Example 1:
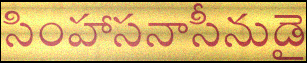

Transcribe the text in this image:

సింహాసనాసీనుడై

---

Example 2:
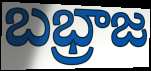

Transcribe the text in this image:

బభ్రాజ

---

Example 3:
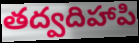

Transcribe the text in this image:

తద్వదిహాపి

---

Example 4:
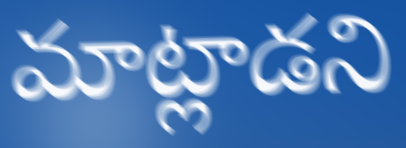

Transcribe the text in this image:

మాట్లాడని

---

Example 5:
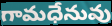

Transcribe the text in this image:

గామధేనువు